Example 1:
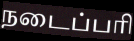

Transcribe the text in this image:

நடைப்பரி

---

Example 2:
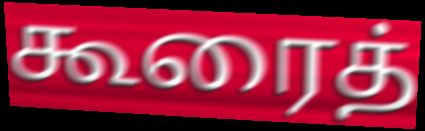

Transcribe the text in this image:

கூரைத்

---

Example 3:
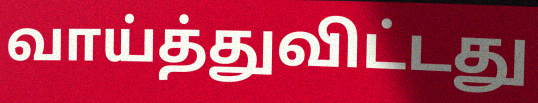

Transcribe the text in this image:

வாய்த்துவிட்டது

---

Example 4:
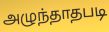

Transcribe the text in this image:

அழுந்தாதபடி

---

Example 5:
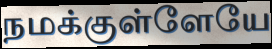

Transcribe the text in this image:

நமக்குள்ளேயே